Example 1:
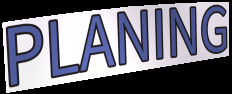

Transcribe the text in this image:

PLANING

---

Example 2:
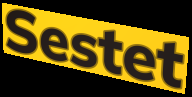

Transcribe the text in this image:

Sestet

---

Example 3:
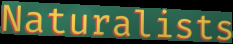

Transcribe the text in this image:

Naturalists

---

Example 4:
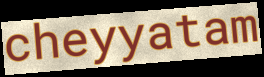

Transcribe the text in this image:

cheyyatam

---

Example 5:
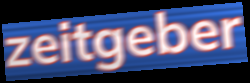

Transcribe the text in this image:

zeitgeber